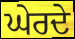
ਘੇਰਦੇ